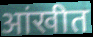
आंखीत